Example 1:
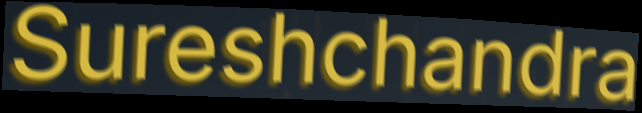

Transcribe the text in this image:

Sureshchandra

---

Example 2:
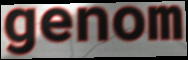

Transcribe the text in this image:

genom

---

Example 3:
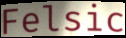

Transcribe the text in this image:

Felsic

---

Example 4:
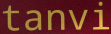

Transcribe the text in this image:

tanvi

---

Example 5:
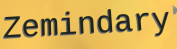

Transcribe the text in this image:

Zemindary